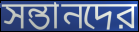
সন্তানদের